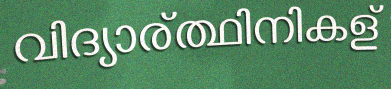
വിദ്യാര്ത്ഥിനികള്